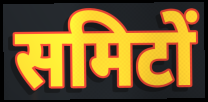
समिटों